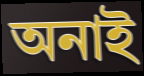
অনাই